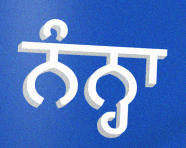
ਨੰਨ੍ਹਾ